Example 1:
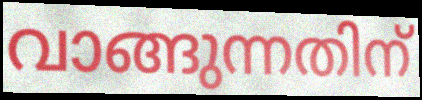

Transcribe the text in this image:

വാങ്ങുന്നതിന്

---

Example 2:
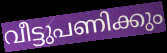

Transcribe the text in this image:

വീട്ടുപണിക്കും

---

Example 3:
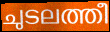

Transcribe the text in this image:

ചുടലത്തീ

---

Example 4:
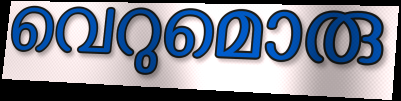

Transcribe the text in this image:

വെറുമൊരു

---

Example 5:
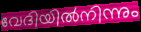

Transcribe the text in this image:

വേദിയിൽനിന്നും